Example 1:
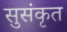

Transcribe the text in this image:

सुसंकृत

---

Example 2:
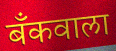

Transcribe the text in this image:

बँकवाला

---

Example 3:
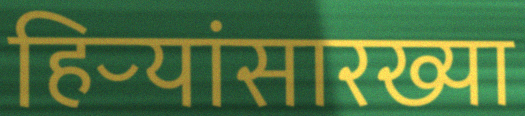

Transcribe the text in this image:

हिऱ्यांसारख्या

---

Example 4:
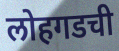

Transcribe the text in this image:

लोहगडची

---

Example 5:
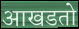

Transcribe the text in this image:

आखडतो